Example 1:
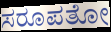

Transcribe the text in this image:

ಸರೂಪತೋ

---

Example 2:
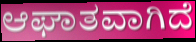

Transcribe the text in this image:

ಆಘಾತವಾಗಿದೆ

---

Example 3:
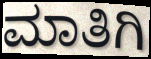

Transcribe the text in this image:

ಮಾತಿಗಿ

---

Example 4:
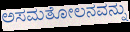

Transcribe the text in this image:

ಅಸಮತೋಲನವನ್ನು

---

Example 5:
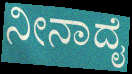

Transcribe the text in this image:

ನೀನಾದೈ